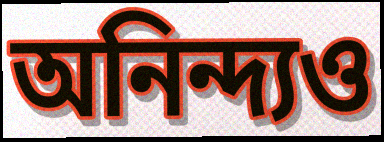
অনিন্দ্যও